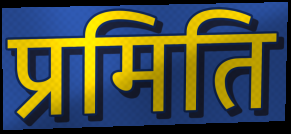
प्रमिति